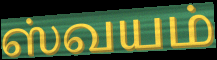
ஸ்வயம்